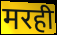
मरही